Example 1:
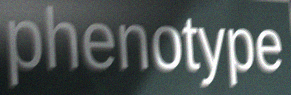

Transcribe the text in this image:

phenotype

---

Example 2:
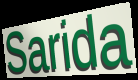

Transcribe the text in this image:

Sarida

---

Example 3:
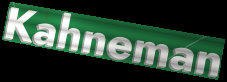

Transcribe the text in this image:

Kahneman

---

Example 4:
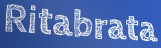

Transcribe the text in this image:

Ritabrata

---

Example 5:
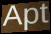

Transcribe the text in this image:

Apt